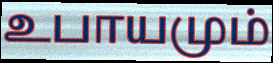
உபாயமும்